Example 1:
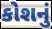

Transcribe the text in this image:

કોશનું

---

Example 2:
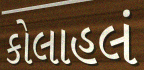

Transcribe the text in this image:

કોલાહલં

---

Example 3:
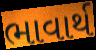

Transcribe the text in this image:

ભાવાર્થ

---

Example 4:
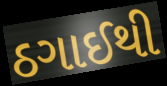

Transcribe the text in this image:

ઠગાઈથી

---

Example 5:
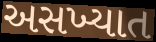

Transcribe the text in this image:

અસખ્યાત